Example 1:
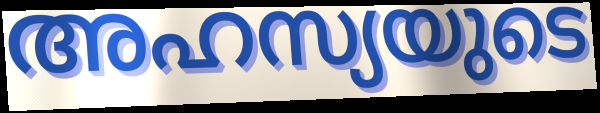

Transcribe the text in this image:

അഹസ്യയുടെ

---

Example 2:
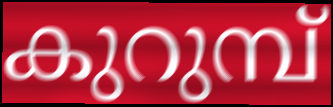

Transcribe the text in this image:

കുറുമ്പ്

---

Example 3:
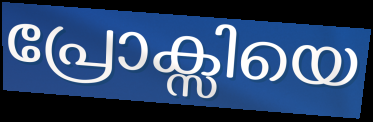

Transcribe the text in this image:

പ്രോക്സിയെ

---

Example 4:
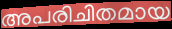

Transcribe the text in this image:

അപരിചിതമായ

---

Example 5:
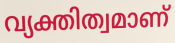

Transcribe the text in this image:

വ്യക്തിത്വമാണ്